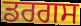
ਡਰਗਸ